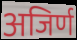
अजिर्ण